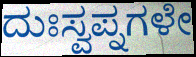
ದುಃಸ್ವಪ್ನಗಳೇ